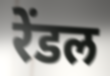
रेंडल